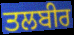
ਤਲਬੀਰ